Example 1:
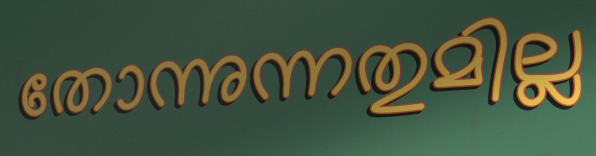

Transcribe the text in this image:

തോന്നുന്നതുമില്ല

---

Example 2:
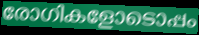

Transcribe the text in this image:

രോഗികളോടൊപ്പം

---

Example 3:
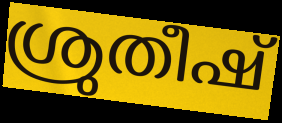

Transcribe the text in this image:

ശ്രുതീഷ്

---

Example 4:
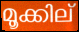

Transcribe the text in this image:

മൂക്കില്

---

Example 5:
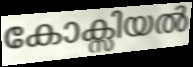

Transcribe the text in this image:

കോക്സിയൽ